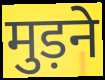
मुड़ने